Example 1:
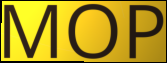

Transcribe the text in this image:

MOP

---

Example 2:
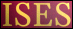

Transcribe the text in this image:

ISES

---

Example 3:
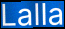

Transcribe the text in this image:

Lalla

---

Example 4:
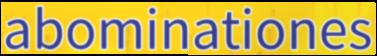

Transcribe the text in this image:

abominationes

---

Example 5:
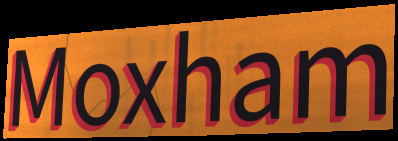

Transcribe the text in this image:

Moxham